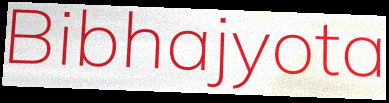
Bibhajyota